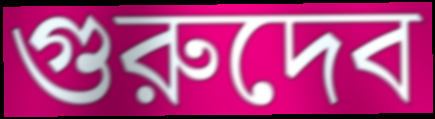
গুরুদেব